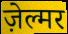
ज़ेल्मर